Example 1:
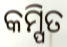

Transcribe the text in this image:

କମ୍ପିତ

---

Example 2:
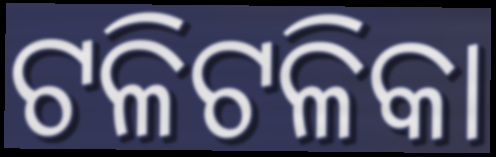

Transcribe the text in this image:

ଟଳିଟଳିକା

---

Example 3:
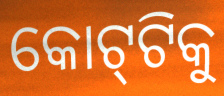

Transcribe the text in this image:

କୋଟ୍‌ଟିକୁ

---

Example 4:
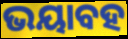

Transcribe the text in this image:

ଭୟାବହ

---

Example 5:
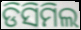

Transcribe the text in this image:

ଡିସିମିଲ